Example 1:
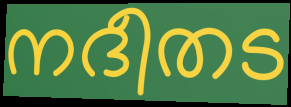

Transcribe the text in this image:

നദീതട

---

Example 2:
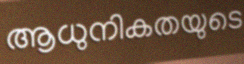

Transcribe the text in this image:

ആധുനികതയുടെ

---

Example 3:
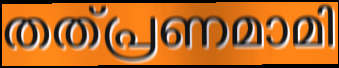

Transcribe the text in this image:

തത്പ്രണമാമി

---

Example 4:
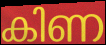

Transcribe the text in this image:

കിണ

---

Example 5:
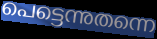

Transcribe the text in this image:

പെട്ടെന്നുതന്നെ